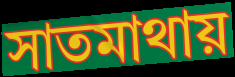
সাতমাথায়